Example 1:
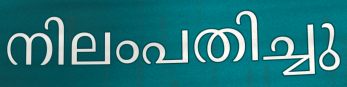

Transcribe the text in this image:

നിലംപതിച്ചു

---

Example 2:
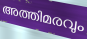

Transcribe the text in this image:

അത്തിമരവും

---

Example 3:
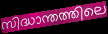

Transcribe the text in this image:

സിദ്ധാന്തത്തിലെ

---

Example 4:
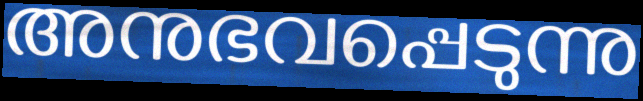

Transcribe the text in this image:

അനുഭവപ്പെടുന്നു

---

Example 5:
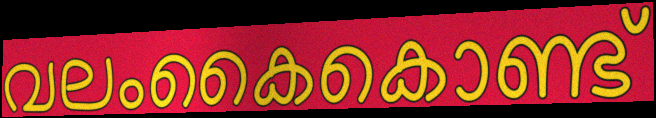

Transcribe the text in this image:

വലംകൈകൊണ്ട്